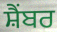
ਸ਼ੈਂਬਰ